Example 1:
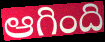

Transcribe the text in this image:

ఆగింది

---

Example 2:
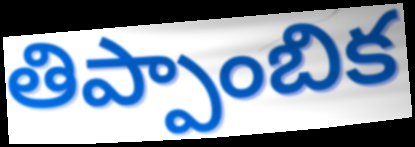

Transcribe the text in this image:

తిప్పాంబిక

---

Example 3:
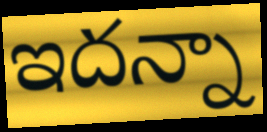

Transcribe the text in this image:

ఇదన్నా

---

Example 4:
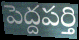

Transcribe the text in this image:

పెద్దపర్తి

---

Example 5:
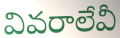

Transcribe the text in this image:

వివరాలేవీ